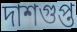
দাশগুপ্ত